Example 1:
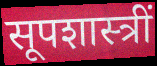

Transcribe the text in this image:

सूपशास्त्रीं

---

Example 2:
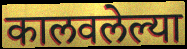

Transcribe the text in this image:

कालवलेल्या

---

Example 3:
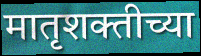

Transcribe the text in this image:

मातृशक्तीच्या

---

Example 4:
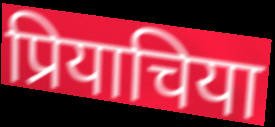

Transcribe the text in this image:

प्रियाचिया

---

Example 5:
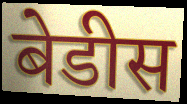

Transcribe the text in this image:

बेडीस